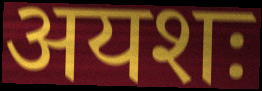
अयशः